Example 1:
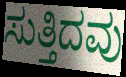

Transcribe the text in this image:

ಸುತ್ತಿದವು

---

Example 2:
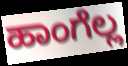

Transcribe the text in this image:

ಹಾಂಗೆಲ್ಲ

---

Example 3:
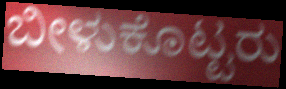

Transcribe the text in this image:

ಬೀಳುಕೊಟ್ಟರು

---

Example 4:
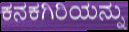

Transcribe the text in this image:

ಕನಕಗಿರಿಯನ್ನು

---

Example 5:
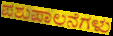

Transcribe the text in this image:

ಪಶುಪಾಲನೆಗಳು